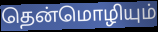
தென்மொழியும்